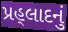
પ્રહ્‌લાદનું